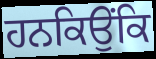
ਹਨਕਿਉਂਕਿ